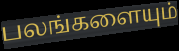
பலங்களையும்